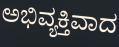
ಅಭಿವ್ಯಕ್ತಿವಾದ